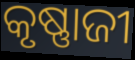
କୃଷ୍ଣାଜୀ